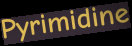
Pyrimidine